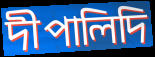
দীপালিদি